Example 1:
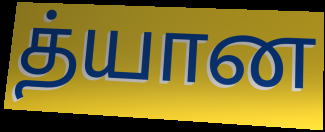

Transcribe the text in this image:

த்யான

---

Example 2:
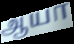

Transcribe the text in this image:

ஆயா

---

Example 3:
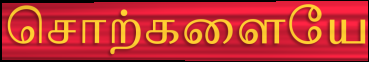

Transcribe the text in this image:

சொற்களையே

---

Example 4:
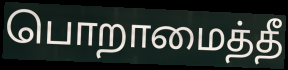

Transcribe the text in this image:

பொறாமைத்தீ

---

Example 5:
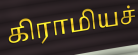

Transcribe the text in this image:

கிராமியச்